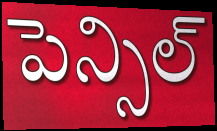
పెన్సిల్